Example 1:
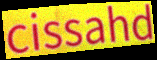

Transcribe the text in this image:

cissahd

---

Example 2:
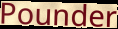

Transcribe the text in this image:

Pounder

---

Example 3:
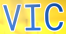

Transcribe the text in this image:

VIC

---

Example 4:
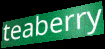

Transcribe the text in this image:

teaberry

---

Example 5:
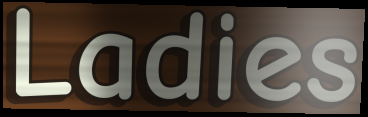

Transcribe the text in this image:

Ladies